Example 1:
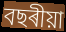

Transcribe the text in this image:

বছৰীয়া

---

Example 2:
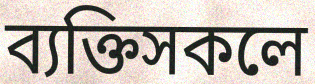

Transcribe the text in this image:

ব্যক্তিসকলে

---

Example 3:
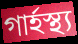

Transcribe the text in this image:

গাৰ্হস্থ্য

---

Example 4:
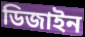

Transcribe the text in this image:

ডিজাইন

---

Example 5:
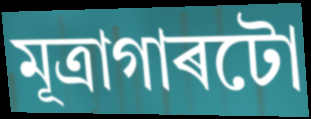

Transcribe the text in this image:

মূত্ৰাগাৰটো